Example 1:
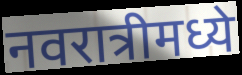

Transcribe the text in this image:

नवरात्रीमध्ये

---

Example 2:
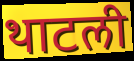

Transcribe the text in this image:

थाटली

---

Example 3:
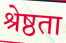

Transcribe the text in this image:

श्रेष्ठता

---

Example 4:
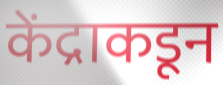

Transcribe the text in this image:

केंद्राकडून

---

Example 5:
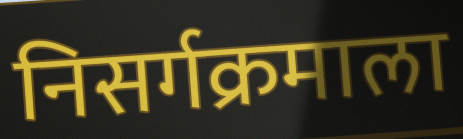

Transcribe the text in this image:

निसर्गक्रमाला